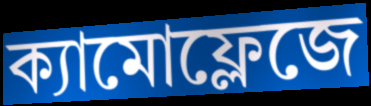
ক্যামোফ্লেজে